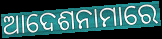
ଆଦେଶନାମାରେ